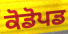
ਕੋਡੋਪਡ